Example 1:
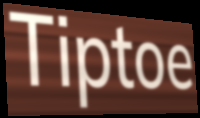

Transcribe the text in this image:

Tiptoe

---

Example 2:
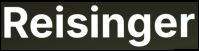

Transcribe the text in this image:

Reisinger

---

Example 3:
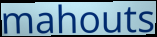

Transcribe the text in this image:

mahouts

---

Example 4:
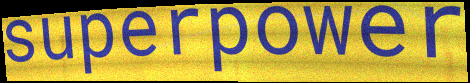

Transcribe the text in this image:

superpower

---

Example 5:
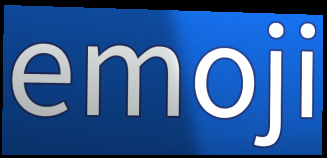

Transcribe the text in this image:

emoji